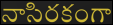
నాసిరకంగా